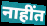
नाहींत